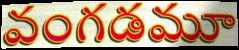
వంగడమూ